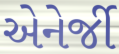
એનેર્જી